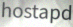
hostapd